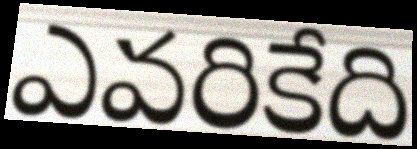
ఎవరికేది